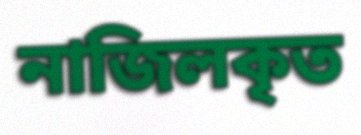
নাজিলকৃত